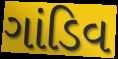
ગાંડિવ